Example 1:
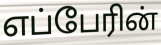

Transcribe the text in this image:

எப்பேரின்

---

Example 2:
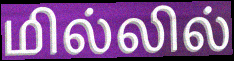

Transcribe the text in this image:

மில்லில்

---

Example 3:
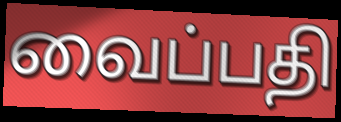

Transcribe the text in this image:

வைப்பதி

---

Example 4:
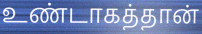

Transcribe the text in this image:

உண்டாகத்தான்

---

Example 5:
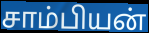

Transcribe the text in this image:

சாம்பியன்